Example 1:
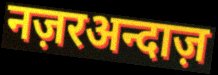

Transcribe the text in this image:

नज़रअन्दाज़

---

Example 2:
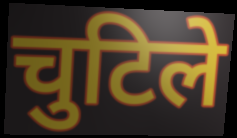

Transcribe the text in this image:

चुटिले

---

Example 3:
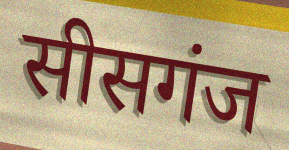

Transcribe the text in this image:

सीसगंज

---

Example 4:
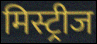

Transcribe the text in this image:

मिस्ट्रीज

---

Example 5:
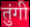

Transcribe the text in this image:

तुंगी